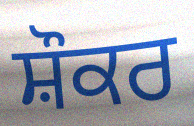
ਸ਼ੌਕਰ